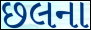
છલના